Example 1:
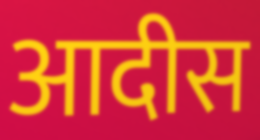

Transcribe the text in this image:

आदीस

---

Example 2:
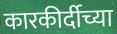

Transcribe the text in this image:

कारकीर्दीच्या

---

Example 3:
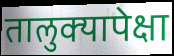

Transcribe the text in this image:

तालुक्यापेक्षा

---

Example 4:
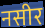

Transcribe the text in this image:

नसीर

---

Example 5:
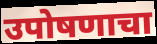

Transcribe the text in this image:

उपोषणाचा